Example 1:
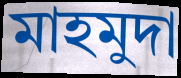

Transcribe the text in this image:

মাহমুদা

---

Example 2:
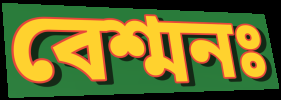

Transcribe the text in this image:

বেশ্মনঃ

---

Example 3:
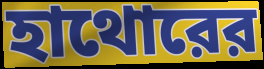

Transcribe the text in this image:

হাথোরের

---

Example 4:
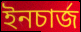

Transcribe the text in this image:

ইনচার্জ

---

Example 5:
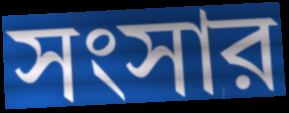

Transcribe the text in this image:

সংসার